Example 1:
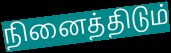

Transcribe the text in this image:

நினைத்திடும்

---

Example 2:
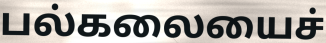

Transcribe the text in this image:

பல்கலையைச்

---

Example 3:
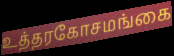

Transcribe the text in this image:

உத்தரகோசமங்கை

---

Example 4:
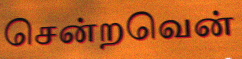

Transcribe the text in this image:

சென்றவென்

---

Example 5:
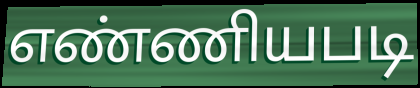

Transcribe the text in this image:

எண்ணியபடி